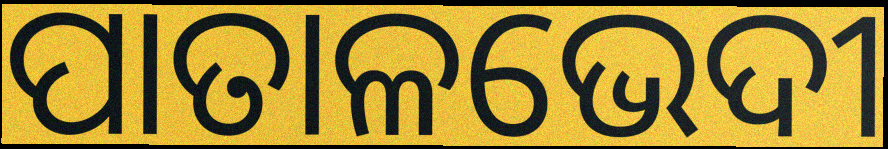
ପାତାଳଭେଦୀ